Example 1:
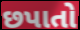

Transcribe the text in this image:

છપાતો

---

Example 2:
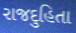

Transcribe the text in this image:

રાજદુહિતા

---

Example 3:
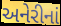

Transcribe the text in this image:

અનેરીનાં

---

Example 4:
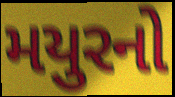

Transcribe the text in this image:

મયુરનો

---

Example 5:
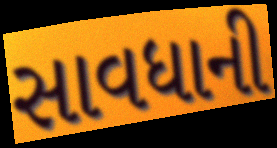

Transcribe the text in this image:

સાવધાની